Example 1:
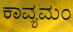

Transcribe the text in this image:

ಕಾವ್ಯಮಂ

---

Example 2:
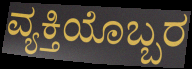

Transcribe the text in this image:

ವ್ಯಕ್ತಿಯೊಬ್ಬರ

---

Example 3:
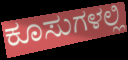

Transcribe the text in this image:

ಕೂಸುಗಳಲ್ಲಿ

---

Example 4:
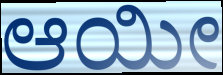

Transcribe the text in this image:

ಆಯೀ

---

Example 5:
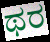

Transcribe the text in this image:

ಥರ